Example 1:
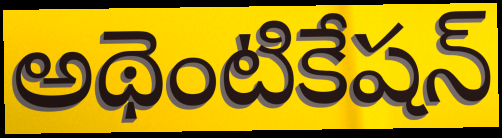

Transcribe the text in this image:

అథెంటికేషన్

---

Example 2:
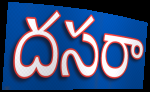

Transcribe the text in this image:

దసరా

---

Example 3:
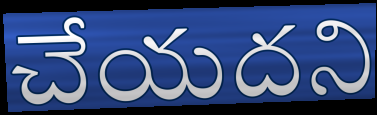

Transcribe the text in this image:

చేయదని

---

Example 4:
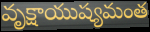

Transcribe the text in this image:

వృక్షాయుష్యమంత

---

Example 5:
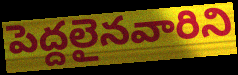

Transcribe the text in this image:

పెద్దలైనవారిని